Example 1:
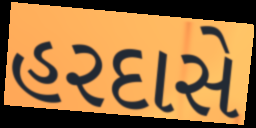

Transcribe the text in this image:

હરદાસે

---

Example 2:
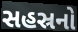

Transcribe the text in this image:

સહસ્રનો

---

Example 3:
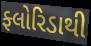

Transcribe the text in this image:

ફ્લોરિડાથી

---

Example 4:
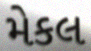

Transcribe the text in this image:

મેકલ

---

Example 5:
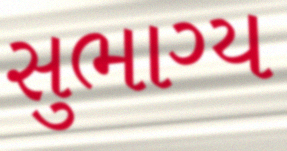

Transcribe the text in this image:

સુભાગ્ય